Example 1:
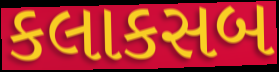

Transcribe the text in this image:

કલાકસબ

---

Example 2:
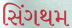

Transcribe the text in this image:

સિંગથમ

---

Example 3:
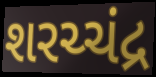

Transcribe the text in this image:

શરચ્ચંદ્ર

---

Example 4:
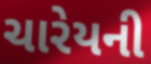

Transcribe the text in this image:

ચારેયની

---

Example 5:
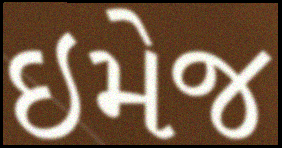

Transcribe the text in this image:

ઇમેજ